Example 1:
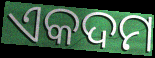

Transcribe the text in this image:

ଏକଦମ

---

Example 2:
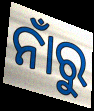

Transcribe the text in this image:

ନାଁରୁ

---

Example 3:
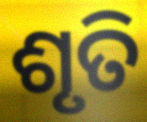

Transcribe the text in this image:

ଶୃତି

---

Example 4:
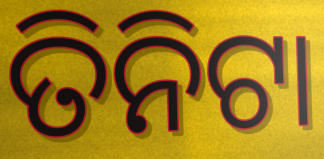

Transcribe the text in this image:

ତିନିଟା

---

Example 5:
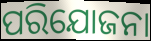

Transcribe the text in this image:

ପରିଯୋଜନା